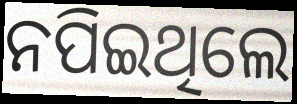
ନପିଇଥିଲେ